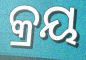
କ୍ରୟ